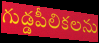
గుడ్డపీలికలను